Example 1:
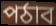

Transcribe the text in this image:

পঠাব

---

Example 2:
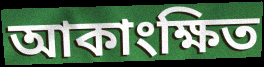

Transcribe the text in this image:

আকাংক্ষিত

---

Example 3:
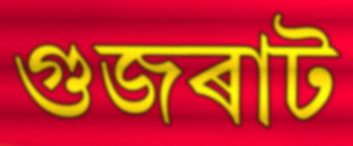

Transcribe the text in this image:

গুজৰাট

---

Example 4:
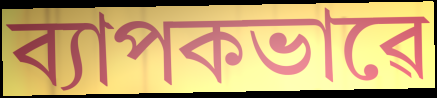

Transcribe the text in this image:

ব্যাপকভাৱে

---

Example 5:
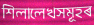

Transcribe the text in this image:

শিলালেখসমূহৰ